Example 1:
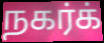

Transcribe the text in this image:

நகர்க்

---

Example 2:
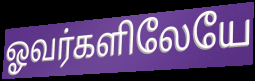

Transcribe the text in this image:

ஓவர்களிலேயே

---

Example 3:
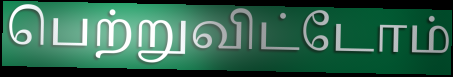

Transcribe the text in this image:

பெற்றுவிட்டோம்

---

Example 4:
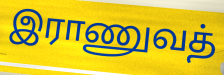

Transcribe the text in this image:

இராணுவத்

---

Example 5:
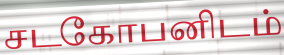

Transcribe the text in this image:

சடகோபனிடம்